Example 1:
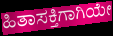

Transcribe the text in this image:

ಹಿತಾಸಕ್ತಿಗಾಗಿಯೇ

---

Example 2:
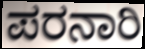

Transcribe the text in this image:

ಪರನಾರಿ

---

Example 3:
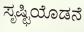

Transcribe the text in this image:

ಸೃಷ್ಟಿಯೊಡನೆ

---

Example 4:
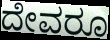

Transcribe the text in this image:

ದೇವರೂ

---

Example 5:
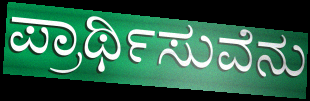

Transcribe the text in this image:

ಪ್ರಾರ್ಥಿಸುವೆನು